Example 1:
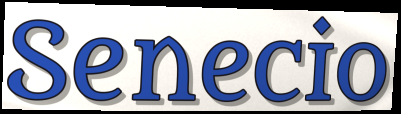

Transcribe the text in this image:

Senecio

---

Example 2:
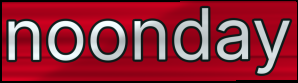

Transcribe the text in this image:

noonday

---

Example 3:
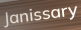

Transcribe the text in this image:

Janissary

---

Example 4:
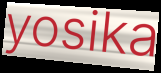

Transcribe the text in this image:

yosika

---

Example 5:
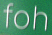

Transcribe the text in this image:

foh